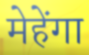
मेहेंगा